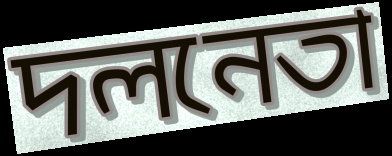
দলনেতা